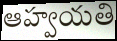
ఆహ్వయతి